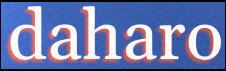
daharo